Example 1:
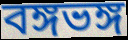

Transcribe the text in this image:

বঙ্গভঙ্গ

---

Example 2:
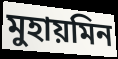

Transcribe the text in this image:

মুহায়মিন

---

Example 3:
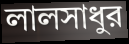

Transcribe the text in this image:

লালসাধুর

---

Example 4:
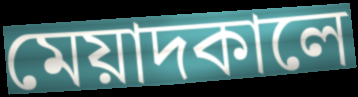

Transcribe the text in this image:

মেয়াদকালে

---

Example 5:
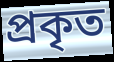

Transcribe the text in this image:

প্রকৃত